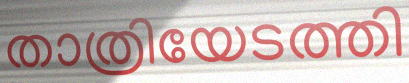
താത്രിയേടത്തി